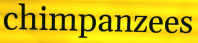
chimpanzees